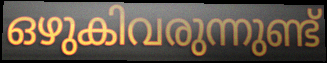
ഒഴുകിവരുന്നുണ്ട്